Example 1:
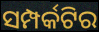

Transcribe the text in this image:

ସମ୍ପର୍କଟିର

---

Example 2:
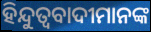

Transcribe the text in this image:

ହିନ୍ଦୁତ୍ଵବାଦୀମାନଙ୍କ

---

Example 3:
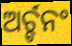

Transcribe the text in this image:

ଅର୍ଚ୍ଚନଂ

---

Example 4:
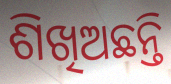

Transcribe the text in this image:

ଶିଖିଅଛନ୍ତି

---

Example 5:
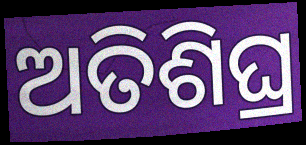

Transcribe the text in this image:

ଅତିଶିଘ୍ର